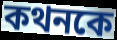
কথনকে